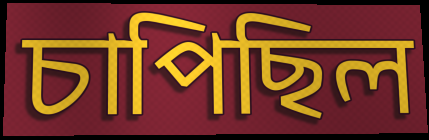
চাপিছিল